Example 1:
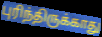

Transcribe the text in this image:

புரிந்திருக்காது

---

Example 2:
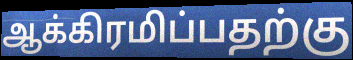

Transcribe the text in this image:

ஆக்கிரமிப்பதற்கு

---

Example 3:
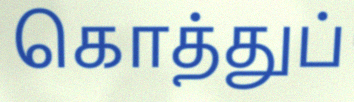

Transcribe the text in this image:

கொத்துப்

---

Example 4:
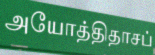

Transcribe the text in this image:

அயோத்திதாசப்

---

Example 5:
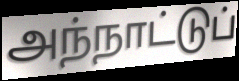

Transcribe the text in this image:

அந்நாட்டுப்